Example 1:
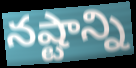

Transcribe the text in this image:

నష్టాన్ని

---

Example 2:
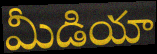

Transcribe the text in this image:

మీడియా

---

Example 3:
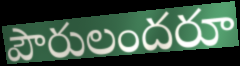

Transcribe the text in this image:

పౌరులందరూ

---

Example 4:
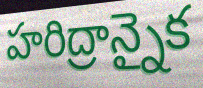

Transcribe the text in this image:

హరిద్రాన్నైక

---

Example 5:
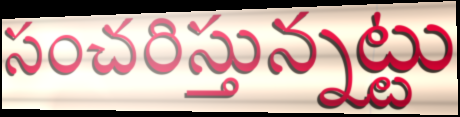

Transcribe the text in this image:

సంచరిస్తున్నట్టు